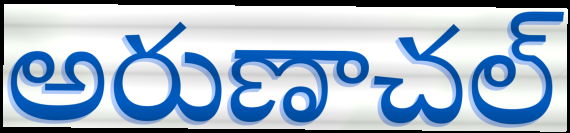
అరుణాచల్